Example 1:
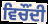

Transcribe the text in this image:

ਵਿਚੌਂਦੀ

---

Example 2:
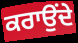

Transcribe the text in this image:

ਕਰਾਉੰਦੇ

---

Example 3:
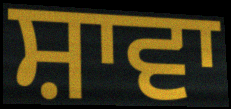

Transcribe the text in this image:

ਸ਼ਾਵਾ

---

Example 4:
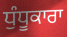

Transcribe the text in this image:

ਧੁੰਧੂਕਾਰਾ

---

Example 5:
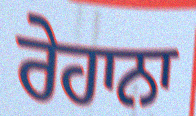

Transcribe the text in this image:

ਰੇਹਾਨਾ